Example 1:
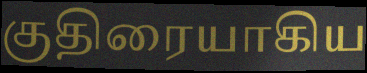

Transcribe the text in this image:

குதிரையாகிய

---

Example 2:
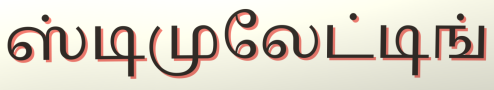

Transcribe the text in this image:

ஸ்டிமுலேட்டிங்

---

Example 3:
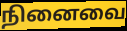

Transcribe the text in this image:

நினைவை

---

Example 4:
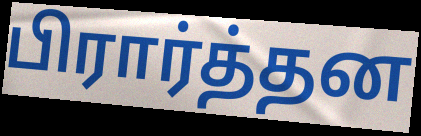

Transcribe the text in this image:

பிரார்த்தன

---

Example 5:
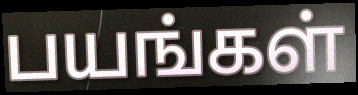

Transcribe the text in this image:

பயங்கள்